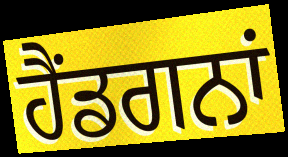
ਹੈਂਡਗਨਾਂ